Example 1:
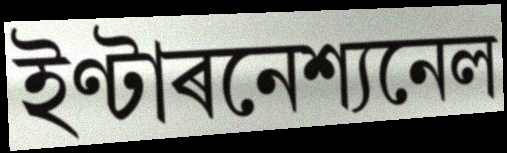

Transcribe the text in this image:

ইণ্টাৰনেশ্যনেল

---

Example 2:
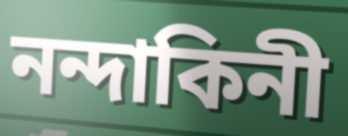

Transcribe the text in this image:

নন্দাকিনী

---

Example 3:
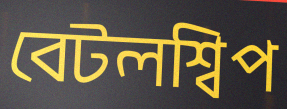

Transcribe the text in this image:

বেটলশ্বিপ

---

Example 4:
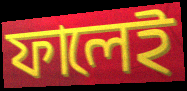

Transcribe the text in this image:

ফালেই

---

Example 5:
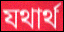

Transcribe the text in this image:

যথাৰ্থ